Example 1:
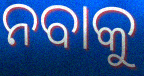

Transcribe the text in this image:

ନବାକୁ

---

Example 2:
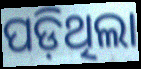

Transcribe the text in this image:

ପଡ଼ିଥିଲା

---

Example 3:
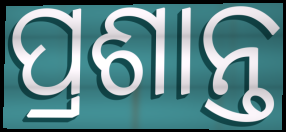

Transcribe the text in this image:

ପ୍ରଶାନ୍ତ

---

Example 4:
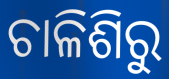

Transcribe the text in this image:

ଚାଳିଶିରୁ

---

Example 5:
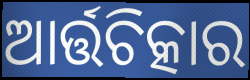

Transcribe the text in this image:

ଆର୍ତ୍ତଚିତ୍କାର